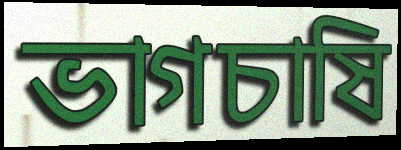
ভাগচাষি